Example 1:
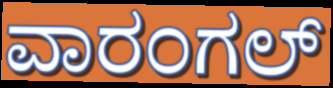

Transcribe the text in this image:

ವಾರಂಗಲ್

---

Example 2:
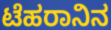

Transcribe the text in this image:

ಟೆಹರಾನಿನ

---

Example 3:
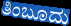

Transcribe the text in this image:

ತಿಂಬೂದು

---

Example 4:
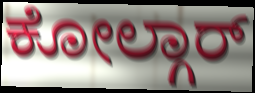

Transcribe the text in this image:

ಕೋಲ್ಗಾರ್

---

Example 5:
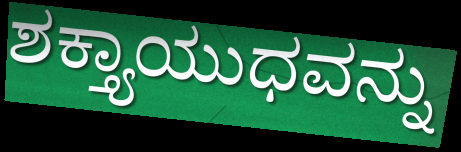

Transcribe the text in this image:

ಶಕ್ತ್ಯಾಯುಧವನ್ನು